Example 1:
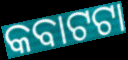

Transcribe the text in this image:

କବାଟଟା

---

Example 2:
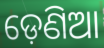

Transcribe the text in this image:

ଡ଼େଣିଆ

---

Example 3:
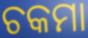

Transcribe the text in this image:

ଚକମା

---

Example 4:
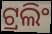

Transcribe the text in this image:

ଟ୍ରଲିଂ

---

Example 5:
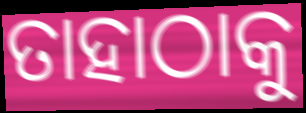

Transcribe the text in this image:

ତାହାଠାକୁ